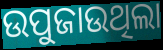
ଉପୁଜାଉଥିଲା